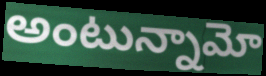
అంటున్నామో